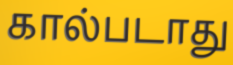
கால்படாது